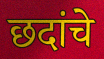
छदांचे